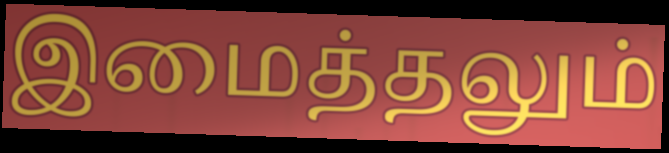
இமைத்தலும்